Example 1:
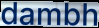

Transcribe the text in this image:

dambh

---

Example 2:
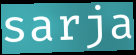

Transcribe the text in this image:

sarja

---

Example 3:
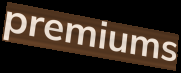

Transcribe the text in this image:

premiums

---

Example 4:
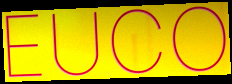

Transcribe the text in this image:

EUCO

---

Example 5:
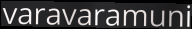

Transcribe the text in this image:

varavaramuni